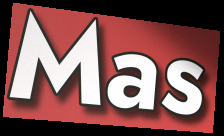
Mas